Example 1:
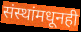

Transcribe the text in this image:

संस्थांमधूनही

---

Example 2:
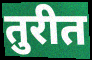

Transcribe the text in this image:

तुरीत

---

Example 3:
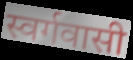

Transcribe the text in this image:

स्वर्गवासी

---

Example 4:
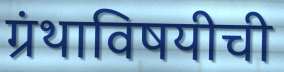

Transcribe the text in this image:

ग्रंथाविषयीची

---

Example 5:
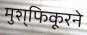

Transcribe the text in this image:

मुश्फिकूरने